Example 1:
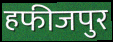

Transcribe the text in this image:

हफीजपुर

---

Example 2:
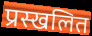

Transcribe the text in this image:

प्रस्खलित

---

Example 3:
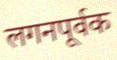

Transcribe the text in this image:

लगनपूर्वक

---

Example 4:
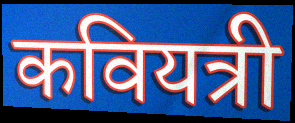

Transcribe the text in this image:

कवियत्री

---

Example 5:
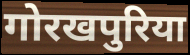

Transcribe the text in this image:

गोरखपुरिया